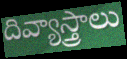
దివ్యాస్త్రాలు